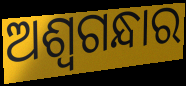
ଅଶ୍ୱଗନ୍ଧାର